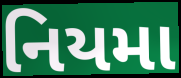
નિયમા